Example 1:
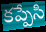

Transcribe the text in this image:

కప్పేసి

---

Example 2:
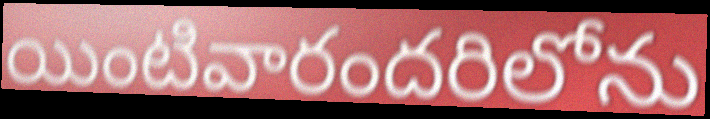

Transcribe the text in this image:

యింటివారందరిలోను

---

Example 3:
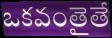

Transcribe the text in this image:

ఒకవంతైతే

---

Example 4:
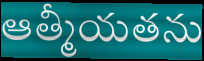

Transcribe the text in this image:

ఆత్మీయతను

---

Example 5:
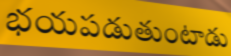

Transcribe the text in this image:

భయపడుతుంటాడు